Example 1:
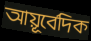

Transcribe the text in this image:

আয়ূর্বেদিক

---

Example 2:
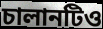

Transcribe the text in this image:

চালানটিও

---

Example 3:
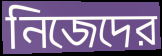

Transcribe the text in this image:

নিজেদের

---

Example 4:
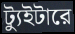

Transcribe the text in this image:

ট্যুইটারে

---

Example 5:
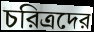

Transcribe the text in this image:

চরিত্রদের